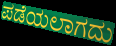
ಪಡೆಯಲಾಗದು